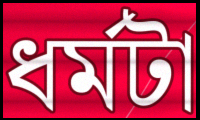
ধর্মটা